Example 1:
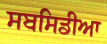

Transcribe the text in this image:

ਸਬਸਿਡੀਆ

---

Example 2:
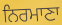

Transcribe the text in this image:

ਨਿਰਮਾਣਾ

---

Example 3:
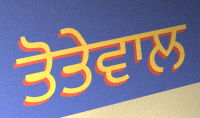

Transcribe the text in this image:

ਤੋਤੇਵਾਲ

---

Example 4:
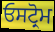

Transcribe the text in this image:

ਓਸਟ੍ਰੋਮ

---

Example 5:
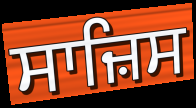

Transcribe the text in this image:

ਸਾਜ਼ਿਸ